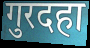
गुरदहा